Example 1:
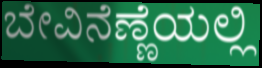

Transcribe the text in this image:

ಬೇವಿನೆಣ್ಣೆಯಲ್ಲಿ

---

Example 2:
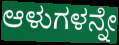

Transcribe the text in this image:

ಆಳುಗಳನ್ನೇ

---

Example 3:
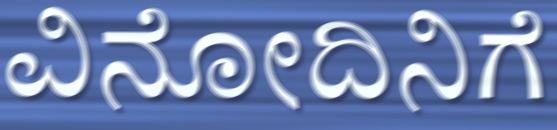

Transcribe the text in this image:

ವಿನೋದಿನಿಗೆ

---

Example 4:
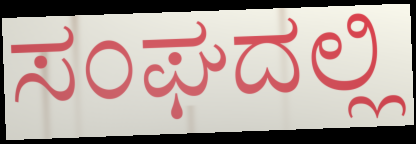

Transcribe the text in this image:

ಸಂಘದಲ್ಲಿ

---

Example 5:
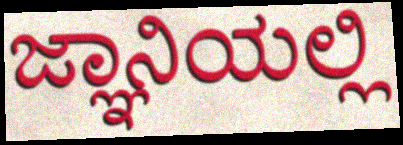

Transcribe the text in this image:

ಜ್ಞಾನಿಯಲ್ಲಿ